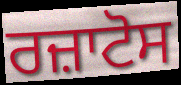
ਰਜ਼ਾਟੋਸ